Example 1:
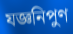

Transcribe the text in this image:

যজ্ঞনিপুণ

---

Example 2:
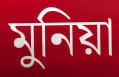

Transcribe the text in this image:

মুনিয়া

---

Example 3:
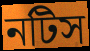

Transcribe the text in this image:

নটিস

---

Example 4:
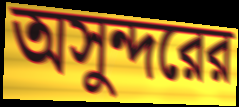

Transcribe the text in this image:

অসুন্দরের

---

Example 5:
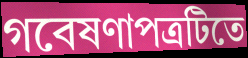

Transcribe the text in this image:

গবেষণাপত্রটিতে